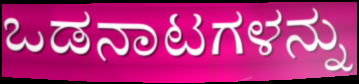
ಒಡನಾಟಗಳನ್ನು